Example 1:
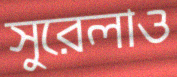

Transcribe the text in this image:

সুরেলাও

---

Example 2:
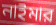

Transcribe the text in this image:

নাইমার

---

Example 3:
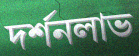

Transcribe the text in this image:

দর্শনলাভ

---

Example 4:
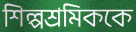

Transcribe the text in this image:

শিল্পশ্রমিককে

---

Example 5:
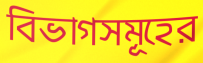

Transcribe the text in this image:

বিভাগসমূহের